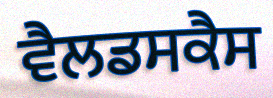
ਵੈਲਡਸਕੈਸ